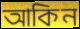
আকিন